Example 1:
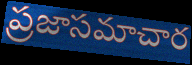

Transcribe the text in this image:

ప్రజాసమాచార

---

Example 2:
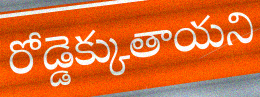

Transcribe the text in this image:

రోడ్డెక్కుతాయని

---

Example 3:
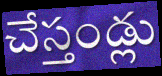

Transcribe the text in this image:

చేస్తండ్లు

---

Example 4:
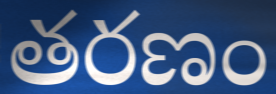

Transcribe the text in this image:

తరణం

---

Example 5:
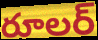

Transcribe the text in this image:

రూలర్